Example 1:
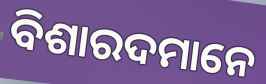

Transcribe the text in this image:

ବିଶାରଦମାନେ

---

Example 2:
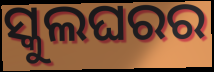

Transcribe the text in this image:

ସ୍କୁଲଘରର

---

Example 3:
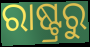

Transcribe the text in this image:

ରାଷ୍ଟ୍ରରୁ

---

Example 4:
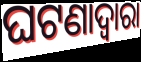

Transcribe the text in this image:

ଘଟଣାଦ୍ୱାରା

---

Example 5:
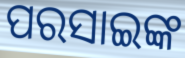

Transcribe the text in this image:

ପରସାଇଙ୍କ